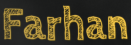
Farhan